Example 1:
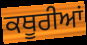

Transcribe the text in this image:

ਕਥੂਰੀਆਂ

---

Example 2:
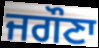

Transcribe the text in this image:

ਜਗੌਣਾ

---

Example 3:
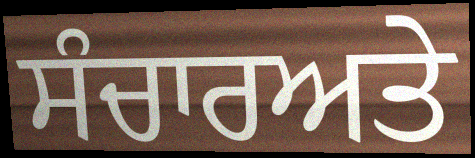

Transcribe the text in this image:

ਸੰਚਾਰਅਤੇ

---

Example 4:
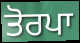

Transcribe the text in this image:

ਤੋਰਪਾ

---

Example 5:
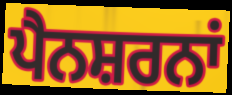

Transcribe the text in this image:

ਪੈਨਸ਼ਰਨਾਂ